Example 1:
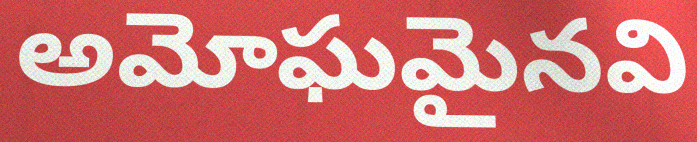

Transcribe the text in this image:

అమోఘమైనవి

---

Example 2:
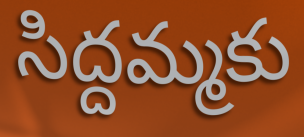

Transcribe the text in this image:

సిద్దమ్మకు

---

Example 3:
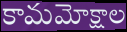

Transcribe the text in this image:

కామమోక్షాల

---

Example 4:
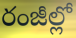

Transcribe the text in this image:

రంజీల్లో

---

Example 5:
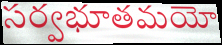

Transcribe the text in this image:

సర్వభూతమయో